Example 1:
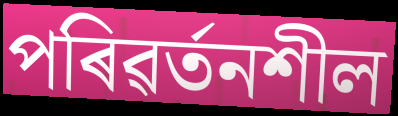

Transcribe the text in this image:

পৰিৱৰ্তনশীল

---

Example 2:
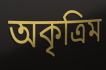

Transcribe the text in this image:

অকৃত্ৰিম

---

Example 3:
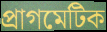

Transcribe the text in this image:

প্ৰাগমেটিক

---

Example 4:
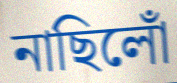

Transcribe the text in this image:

নাছিলোঁ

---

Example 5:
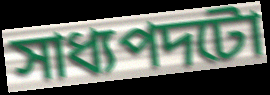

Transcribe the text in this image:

সাধ্যপদটো